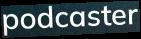
podcaster